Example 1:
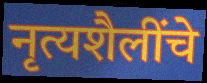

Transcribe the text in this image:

नृत्यशैलींचे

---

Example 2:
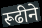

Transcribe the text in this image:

रूढीने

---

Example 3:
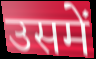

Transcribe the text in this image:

उसमें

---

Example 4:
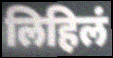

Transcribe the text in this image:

लिहिलं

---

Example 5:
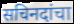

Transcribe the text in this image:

सचिनदांचा